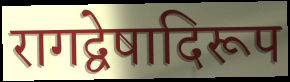
रागद्वेषादिरूप